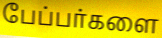
பேப்பர்களை